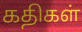
கதிகள்